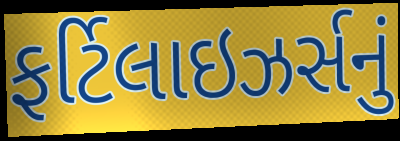
ફર્ટિલાઇઝર્સનું